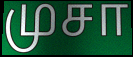
முசா